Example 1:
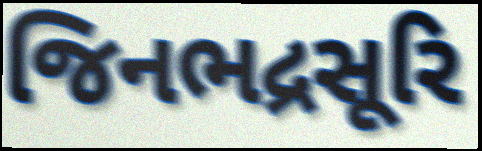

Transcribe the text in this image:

જિનભદ્રસૂરિ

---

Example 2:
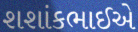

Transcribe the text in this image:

શશાંકભાઈએ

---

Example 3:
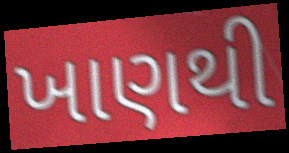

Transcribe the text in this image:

ખાણથી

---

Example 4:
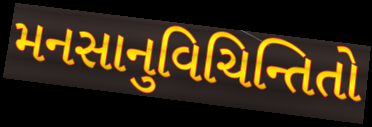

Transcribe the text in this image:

મનસાનુવિચિન્તિતો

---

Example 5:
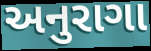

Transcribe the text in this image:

અનુરાગા